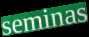
seminas